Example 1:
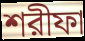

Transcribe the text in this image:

শরীফা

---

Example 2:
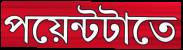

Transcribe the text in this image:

পয়েন্টটাতে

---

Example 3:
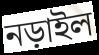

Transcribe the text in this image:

নড়াইল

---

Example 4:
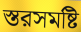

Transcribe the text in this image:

স্তরসমষ্টি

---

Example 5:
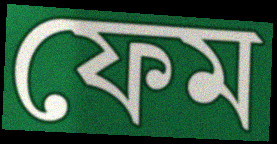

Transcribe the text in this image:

ফেম